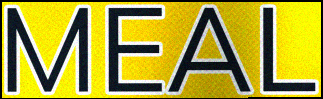
MEAL